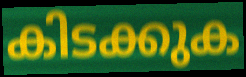
കിടക്കുക